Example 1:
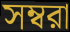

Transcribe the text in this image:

সম্বরা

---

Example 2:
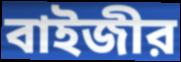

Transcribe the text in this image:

বাইজীর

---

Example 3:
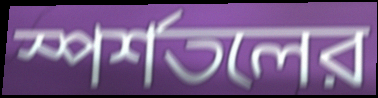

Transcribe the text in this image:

স্পর্শতলের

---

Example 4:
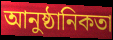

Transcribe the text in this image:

আনুষ্ঠানিকতা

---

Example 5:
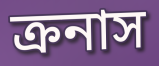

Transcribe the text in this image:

ক্রনাস